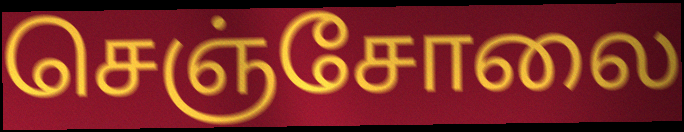
செஞ்சோலை